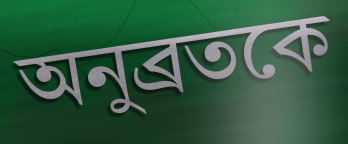
অনুব্রতকে